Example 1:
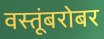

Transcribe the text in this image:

वस्तूंबरोबर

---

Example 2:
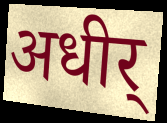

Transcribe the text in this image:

अधीर्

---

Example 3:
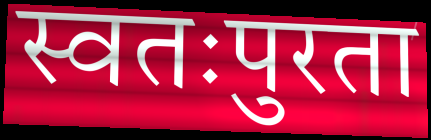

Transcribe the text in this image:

स्वतःपुरता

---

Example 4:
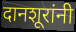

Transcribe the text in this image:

दानशूरांनी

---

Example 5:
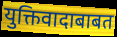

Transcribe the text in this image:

युक्तिवादाबाबत